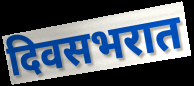
दिवसभरात